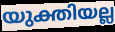
യുക്തിയല്ല